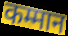
कम्मान